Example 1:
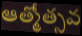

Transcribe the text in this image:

ఆత్మోత్సవ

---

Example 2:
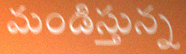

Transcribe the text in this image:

మండిస్తున్న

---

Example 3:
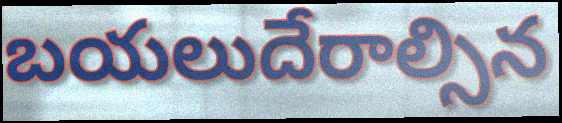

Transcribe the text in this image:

బయలుదేరాల్సిన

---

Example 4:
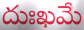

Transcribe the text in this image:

దుఃఖమే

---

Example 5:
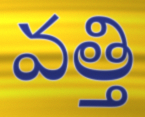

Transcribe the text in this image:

వత్తి